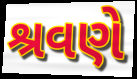
શ્રવણે